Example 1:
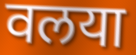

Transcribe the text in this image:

वलया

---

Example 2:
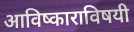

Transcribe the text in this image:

आविष्काराविषयी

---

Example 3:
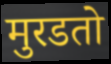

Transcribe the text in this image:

मुरडतो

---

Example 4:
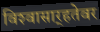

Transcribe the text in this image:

विश्वासार्हतेवर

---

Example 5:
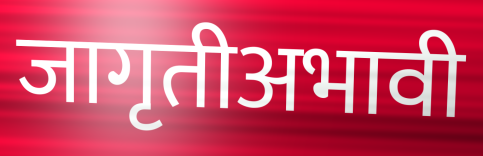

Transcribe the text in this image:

जागृतीअभावी